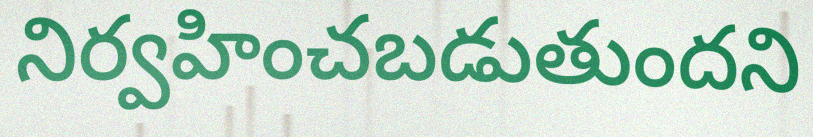
నిర్వహించబడుతుందని